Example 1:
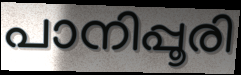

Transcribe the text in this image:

പാനിപ്പൂരി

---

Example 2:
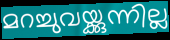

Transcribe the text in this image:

മറച്ചുവയ്ക്കുന്നില്ല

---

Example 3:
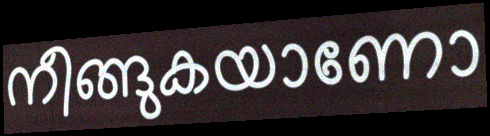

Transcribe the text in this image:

നീങ്ങുകയാണോ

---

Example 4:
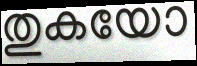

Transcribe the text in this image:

തുകയോ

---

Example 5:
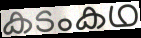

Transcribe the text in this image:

കടംകഥ